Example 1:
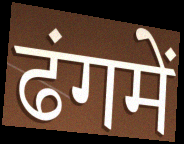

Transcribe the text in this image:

ढंगमें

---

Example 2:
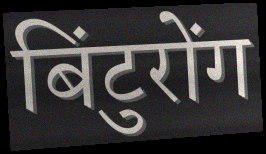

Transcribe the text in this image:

बिंटुरोंग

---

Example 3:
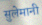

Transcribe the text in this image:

सुलेमानी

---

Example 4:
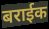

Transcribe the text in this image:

बराईक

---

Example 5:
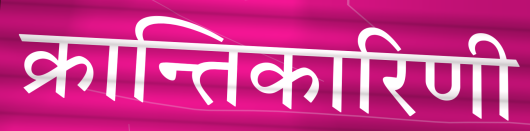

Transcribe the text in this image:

क्रान्तिकारिणी